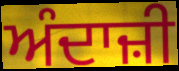
ਅੰਦਾਜ਼ੀ